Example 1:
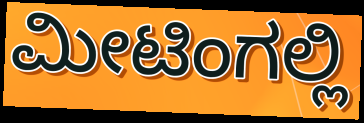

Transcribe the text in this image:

ಮೀಟಿಂಗಲ್ಲಿ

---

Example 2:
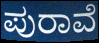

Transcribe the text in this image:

ಪುರಾವೆ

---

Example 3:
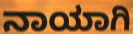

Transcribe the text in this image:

ನಾಯಾಗಿ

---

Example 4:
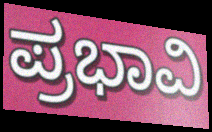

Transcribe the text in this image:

ಪ್ರಭಾವಿ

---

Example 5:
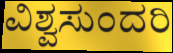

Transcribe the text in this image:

ವಿಶ್ವಸುಂದರಿ